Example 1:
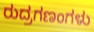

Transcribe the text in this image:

ರುದ್ರಗಣಂಗಳು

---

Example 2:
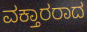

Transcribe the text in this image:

ವಕ್ತಾರರಾದ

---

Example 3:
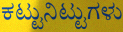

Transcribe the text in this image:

ಕಟ್ಟುನಿಟ್ಟುಗಳು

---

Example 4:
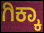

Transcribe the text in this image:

ಗಿಕ್ಕಾ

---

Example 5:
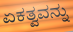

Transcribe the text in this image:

ಏಕತ್ವವನ್ನು